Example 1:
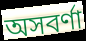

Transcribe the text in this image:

অসবর্ণা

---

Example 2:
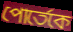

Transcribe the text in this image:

পোর্তেকে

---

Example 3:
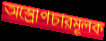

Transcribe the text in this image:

অস্ত্রোপচারমূলক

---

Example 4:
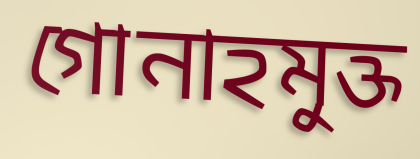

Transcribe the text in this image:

গোনাহমুক্ত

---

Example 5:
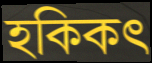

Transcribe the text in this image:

হকিকৎ